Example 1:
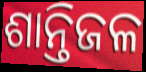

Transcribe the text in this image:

ଶାନ୍ତିଜଳ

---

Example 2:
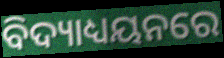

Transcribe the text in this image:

ବିଦ୍ୟାଧ୍ୟୟନରେ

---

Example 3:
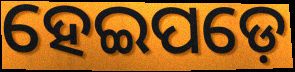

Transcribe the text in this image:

ହେଇପଡ଼େ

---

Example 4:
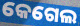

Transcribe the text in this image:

କେଗେଲ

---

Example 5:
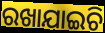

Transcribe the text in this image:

ରଖାଯାଇଚି